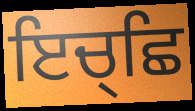
ਇਚ੍ਛਿ